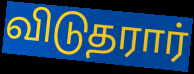
விடுதரார்